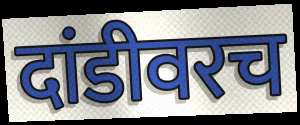
दांडीवरच